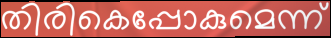
തിരികെപ്പോകുമെന്ന്